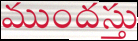
ముందస్తు